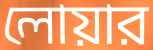
লোয়ার